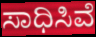
ಸಾಧಿಸಿವೆ